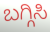
ಬಗ್ಗಿಸಿ